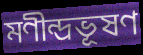
মণীন্দ্রভূষণ